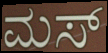
ಮಸ್